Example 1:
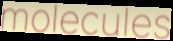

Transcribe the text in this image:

molecules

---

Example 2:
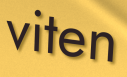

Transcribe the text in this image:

viten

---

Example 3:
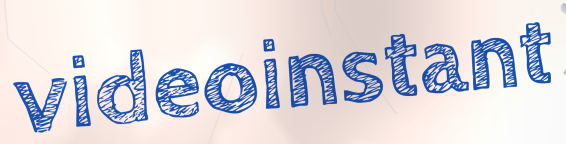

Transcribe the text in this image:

videoinstant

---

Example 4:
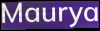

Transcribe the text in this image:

Maurya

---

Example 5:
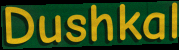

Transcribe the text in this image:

Dushkal